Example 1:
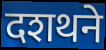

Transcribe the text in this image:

दशथने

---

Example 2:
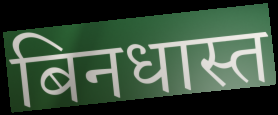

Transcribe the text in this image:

बिनधास्त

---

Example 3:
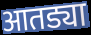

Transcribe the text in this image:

आतड्या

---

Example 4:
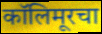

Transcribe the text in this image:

कॉलिमूरचा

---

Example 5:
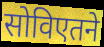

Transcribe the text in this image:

सोविएतने